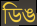
ডিঙ